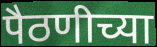
पैठणीच्या